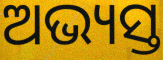
ଅଭ୍ୟସ୍ତ